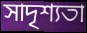
সাদৃশ্যতা